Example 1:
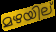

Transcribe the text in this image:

മഴയില്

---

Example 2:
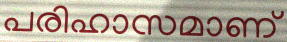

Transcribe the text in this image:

പരിഹാസമാണ്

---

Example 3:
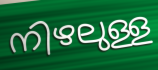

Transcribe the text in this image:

നിഴലുള്ള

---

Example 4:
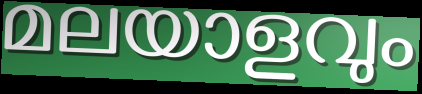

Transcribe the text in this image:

മലയാളവും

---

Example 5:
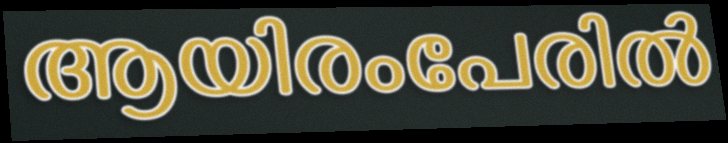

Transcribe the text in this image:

ആയിരംപേരിൽ